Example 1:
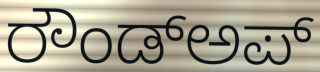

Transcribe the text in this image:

ರೌಂಡ್ಅಪ್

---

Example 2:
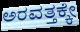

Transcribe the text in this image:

ಅರವತ್ತಕ್ಕೇ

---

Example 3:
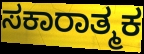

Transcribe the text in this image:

ಸಕಾರಾತ್ಮಕ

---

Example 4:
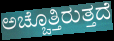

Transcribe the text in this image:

ಅಚ್ಚೊತ್ತಿರುತ್ತದೆ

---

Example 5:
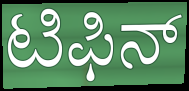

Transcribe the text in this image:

ಟಿಫಿನ್